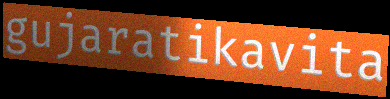
gujaratikavita